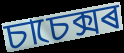
চাচেক্সৰ